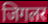
जिगलर